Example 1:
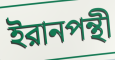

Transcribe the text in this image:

ইরানপন্থী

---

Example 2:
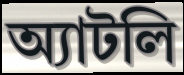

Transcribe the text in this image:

অ্যাটলি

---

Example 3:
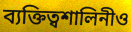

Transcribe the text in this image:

ব্যক্তিত্বশালিনীও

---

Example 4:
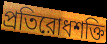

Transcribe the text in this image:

প্রতিরোধশক্তি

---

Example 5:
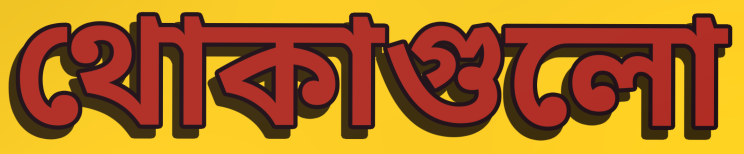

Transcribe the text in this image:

থোকাগুলো